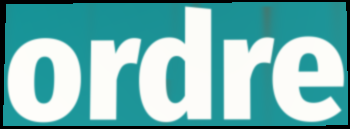
ordre